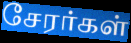
சேரர்கள்